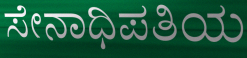
ಸೇನಾಧಿಪತಿಯ